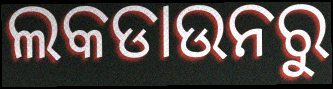
ଲକଡାଉନରୁ